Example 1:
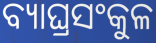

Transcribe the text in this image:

ବ୍ୟାଘ୍ରସଂକୁଳ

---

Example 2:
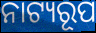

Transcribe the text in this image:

ନାଟ୍ୟରୂପ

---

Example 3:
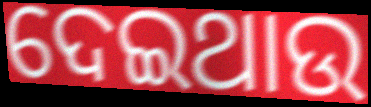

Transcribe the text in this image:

ଦେଇଥାଉ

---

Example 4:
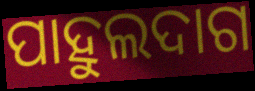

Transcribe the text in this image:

ପାହୁଲଦାଗ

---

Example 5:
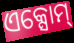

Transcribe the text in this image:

ଏକ୍ସୋମ୍